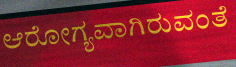
ಆರೋಗ್ಯವಾಗಿರುವಂತೆ